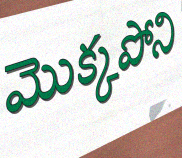
మొక్కపోని